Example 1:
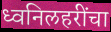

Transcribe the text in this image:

ध्वनिलहरींचा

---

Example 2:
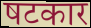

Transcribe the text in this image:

षटकार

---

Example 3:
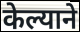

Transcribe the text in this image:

केल्याने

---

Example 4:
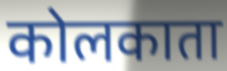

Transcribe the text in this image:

कोलकाता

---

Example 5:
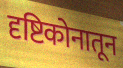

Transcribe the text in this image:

दृष्टिकोनातून